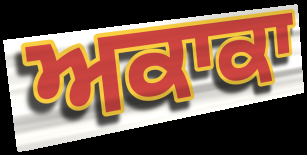
ਅਕਾਕਾ